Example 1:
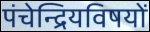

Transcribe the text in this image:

पंचेन्द्रियविषयों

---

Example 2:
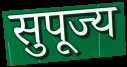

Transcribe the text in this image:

सुपूज्य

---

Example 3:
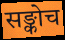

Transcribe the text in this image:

सङ्कोच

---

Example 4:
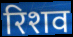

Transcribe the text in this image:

रिशव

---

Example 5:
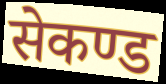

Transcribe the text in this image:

सेकण्ड